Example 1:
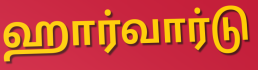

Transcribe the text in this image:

ஹார்வார்டு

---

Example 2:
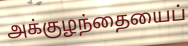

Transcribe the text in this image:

அக்குழந்தையைப்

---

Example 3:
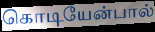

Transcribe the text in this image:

கொடியேன்பால்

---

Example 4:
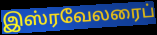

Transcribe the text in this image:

இஸ்ரவேலரைப்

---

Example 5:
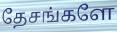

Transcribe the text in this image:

தேசங்களே